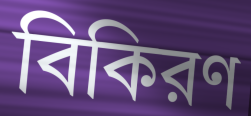
বিকিরণ